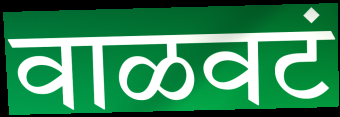
वाळवटं